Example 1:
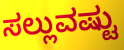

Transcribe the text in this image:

ಸಲ್ಲುವಷ್ಟು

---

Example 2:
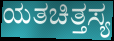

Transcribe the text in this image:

ಯತಚಿತ್ತಸ್ಯ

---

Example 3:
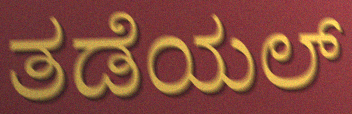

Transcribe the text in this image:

ತಡೆಯಲ್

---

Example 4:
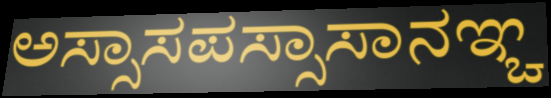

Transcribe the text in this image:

ಅಸ್ಸಾಸಪಸ್ಸಾಸಾನಞ್ಚ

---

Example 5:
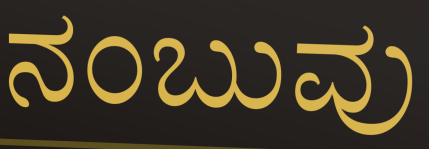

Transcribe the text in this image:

ನಂಬುವು